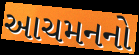
આચમનનો